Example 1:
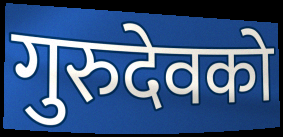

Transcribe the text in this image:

गुरुदेवको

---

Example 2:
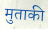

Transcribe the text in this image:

मुताकी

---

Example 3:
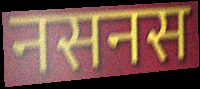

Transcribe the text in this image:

नसनस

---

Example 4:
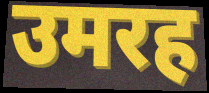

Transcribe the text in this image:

उमरह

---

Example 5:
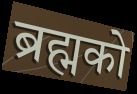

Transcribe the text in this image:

ब्रह्मको